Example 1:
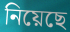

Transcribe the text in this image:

নিয়েছে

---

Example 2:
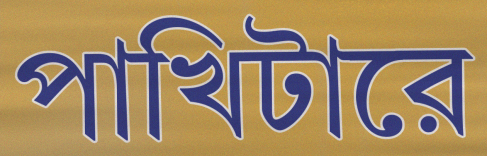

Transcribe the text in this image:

পাখিটারে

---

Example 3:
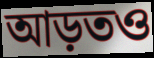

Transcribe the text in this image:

আড়তও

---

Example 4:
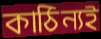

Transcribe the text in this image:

কাঠিন্যই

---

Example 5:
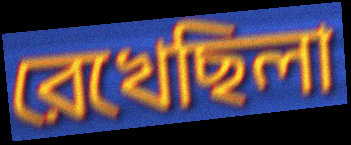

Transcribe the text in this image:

রেখেছিলা